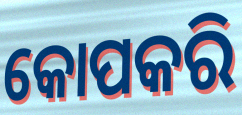
କୋପକରି